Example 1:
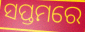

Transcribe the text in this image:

ସପ୍ତମରେ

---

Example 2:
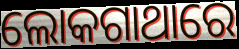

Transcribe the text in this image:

ଲୋକଗାଥାରେ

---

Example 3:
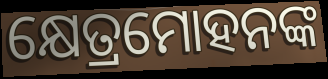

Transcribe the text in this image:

କ୍ଷେତ୍ରମୋହନଙ୍କ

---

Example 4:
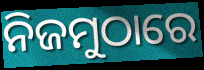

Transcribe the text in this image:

ନିଜମୁଠାରେ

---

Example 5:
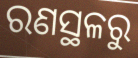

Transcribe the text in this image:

ରଣସ୍ଥଳରୁ